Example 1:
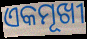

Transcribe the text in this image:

ଏକମୂଖୀ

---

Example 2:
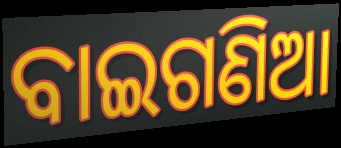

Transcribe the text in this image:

ବାଇଗଣିଆ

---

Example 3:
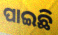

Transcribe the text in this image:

ପାଇଛି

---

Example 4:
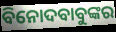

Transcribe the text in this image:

ବିନୋଦବାବୁଙ୍କର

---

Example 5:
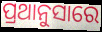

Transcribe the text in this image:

ପ୍ରଥାନୁସାରେ